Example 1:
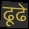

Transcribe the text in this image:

ढूढे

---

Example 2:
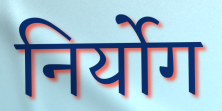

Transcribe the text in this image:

निर्योग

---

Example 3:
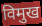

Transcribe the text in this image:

विमुख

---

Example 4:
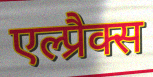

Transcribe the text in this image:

एल्प्रैक्स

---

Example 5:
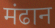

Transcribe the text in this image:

मंढान